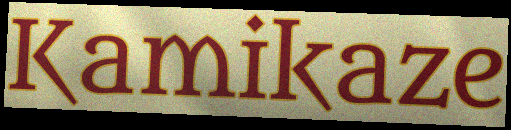
Kamikaze